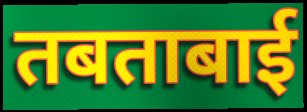
तबताबाई